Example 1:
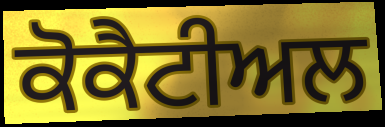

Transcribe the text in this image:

ਕੋਕੈਟੀਅਲ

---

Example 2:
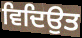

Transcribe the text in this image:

ਵਿਦਿਉਤ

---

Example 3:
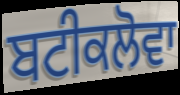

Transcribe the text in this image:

ਬਟੀਕਲੋਵਾ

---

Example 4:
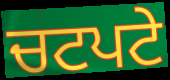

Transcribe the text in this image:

ਚਟਪਟੇ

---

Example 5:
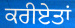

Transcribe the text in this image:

ਕਰੀਏਤਾਂ